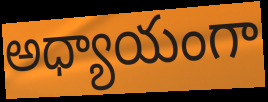
అధ్యాయంగా